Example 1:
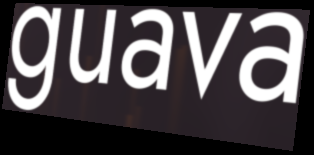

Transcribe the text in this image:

guava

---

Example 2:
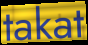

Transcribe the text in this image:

takat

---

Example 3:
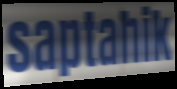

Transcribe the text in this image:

saptahik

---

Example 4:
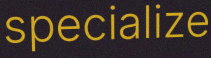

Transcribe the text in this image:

specialize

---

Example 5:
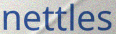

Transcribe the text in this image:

nettles